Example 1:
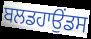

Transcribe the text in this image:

ਬਲਡਹਾਉਂਡਸ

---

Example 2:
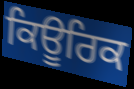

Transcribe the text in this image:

ਕਿਊਰਿਕ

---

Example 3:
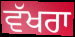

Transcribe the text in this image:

ਵੱਖਰਾ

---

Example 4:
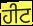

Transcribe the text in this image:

ਹੀਟ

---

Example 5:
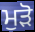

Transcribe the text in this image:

ਮੁਡ਼ੋ